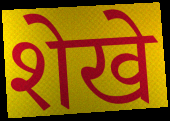
शेखे